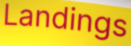
Landings